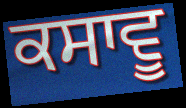
ਕਸਾਵੂ